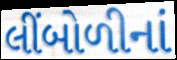
લીંબોળીનાં